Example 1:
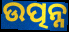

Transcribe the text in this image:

ଉତ୍ପନ୍ନ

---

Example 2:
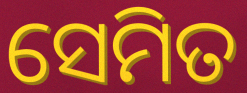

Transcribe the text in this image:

ସେମିତ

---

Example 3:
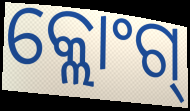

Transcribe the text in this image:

କ୍ଲୋଂଗ୍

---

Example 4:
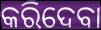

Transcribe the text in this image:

କରିଦେବା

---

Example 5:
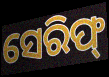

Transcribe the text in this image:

ସେରିଫ୍